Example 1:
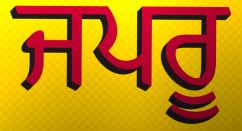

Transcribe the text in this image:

ਜਪਰੂ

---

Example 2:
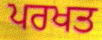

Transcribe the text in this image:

ਪਰਖਤ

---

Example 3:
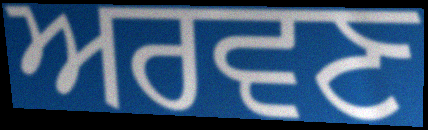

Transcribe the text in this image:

ਅਰਵਣ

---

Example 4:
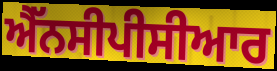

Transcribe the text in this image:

ਐੱਨਸੀਪੀਸੀਆਰ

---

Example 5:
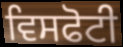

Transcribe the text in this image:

ਵਿਸਫੋਟੀ